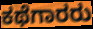
ಕಥೆಗಾರರು